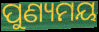
ପୁଣ୍ୟମୟ